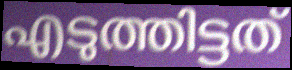
എടുത്തിട്ടത്